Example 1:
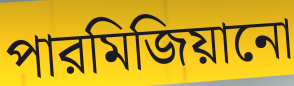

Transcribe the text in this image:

পারমিজিয়ানো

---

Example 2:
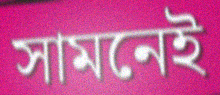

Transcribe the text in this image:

সামনেই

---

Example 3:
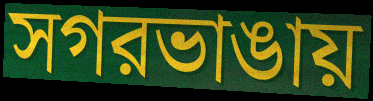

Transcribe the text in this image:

সগরভাঙায়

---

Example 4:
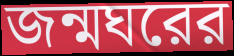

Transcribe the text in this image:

জন্মঘরের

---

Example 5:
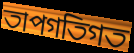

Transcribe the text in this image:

তাপগতিগত